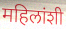
महिलांशी